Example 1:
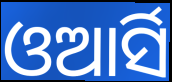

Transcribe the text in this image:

ଓଆର୍ସି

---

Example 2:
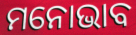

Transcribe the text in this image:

ମନୋଭାବ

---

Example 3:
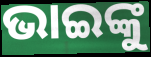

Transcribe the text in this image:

ଭାଇଙ୍କୁ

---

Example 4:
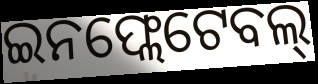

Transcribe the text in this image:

ଇନଫ୍ଲେଟେବଲ୍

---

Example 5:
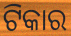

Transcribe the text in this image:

ଟିକାର